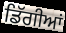
ਡਿੱਗੀਆਂ